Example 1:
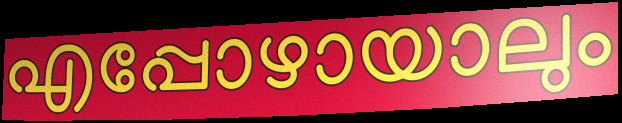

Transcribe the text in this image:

എപ്പോഴായാലും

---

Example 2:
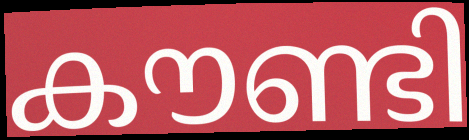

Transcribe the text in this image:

കൗണ്ടി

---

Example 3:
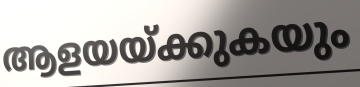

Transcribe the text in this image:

ആളയയ്ക്കുകയും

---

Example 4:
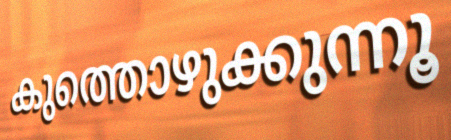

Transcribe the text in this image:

കുത്തൊഴുക്കുന്നൂ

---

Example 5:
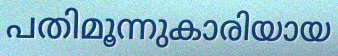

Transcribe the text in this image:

പതിമൂന്നുകാരിയായ